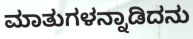
ಮಾತುಗಳನ್ನಾಡಿದನು